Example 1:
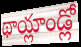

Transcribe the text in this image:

థాయ్లాండ్లో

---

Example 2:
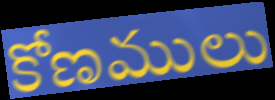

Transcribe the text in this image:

కోణములు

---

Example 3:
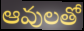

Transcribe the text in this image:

ఆవులతో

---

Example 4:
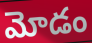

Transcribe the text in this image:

మోడం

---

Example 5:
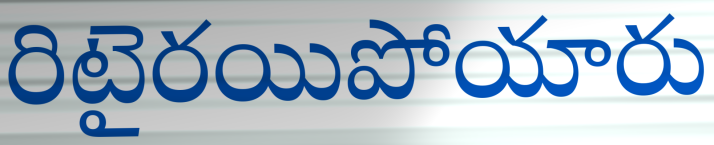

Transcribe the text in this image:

రిటైరయిపోయారు